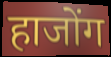
हाजोंग